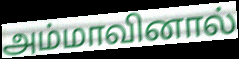
அம்மாவினால்